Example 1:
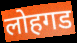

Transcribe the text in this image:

लोहगड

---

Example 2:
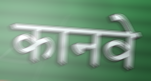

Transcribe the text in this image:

कानवे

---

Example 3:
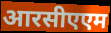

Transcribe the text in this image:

आरसीएएम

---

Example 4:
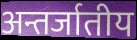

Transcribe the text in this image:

अन्तर्जातीय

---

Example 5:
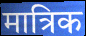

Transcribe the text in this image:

मात्रिक